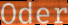
Oder